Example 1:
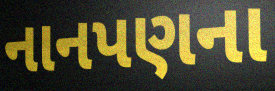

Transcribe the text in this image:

નાનપણના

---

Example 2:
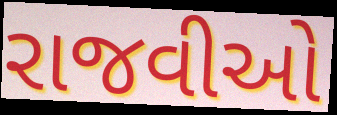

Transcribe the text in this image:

રાજવીઓ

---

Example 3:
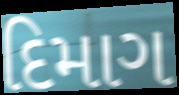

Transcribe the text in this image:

દિમાગ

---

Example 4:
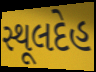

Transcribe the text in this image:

સ્થૂલદેહ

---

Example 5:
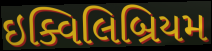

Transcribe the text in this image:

ઇક્વિલિબ્રિયમ